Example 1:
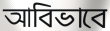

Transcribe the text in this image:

আবিভাবে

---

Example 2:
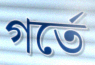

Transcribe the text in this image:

গর্তে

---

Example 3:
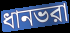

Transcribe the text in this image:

ধানভরা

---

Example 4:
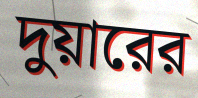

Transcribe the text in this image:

দুয়ারের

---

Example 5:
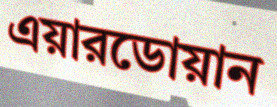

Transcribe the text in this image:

এয়ারডোয়ান